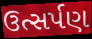
ઉત્સર્પણ